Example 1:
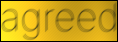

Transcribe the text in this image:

agreed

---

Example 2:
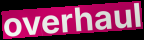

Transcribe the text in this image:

overhaul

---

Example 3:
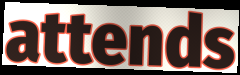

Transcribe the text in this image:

attends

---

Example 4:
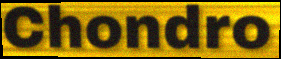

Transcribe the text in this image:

Chondro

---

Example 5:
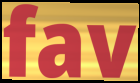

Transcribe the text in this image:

fav